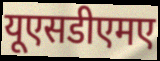
यूएसडीएमए